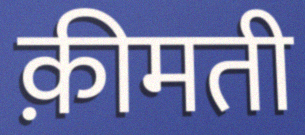
क़ीमती